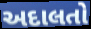
અદાલતો